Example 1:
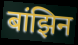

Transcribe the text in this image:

बांझिन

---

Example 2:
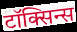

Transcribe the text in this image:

टॉक्सिन्स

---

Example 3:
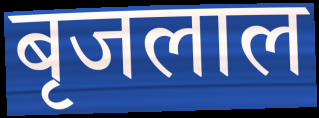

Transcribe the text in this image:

बृजलाल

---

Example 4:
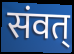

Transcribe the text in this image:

संवत्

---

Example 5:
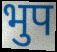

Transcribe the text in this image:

भुप